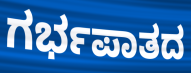
ಗರ್ಭಪಾತದ